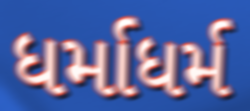
ધર્માધર્મ